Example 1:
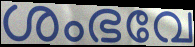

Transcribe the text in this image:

ശംഭവേ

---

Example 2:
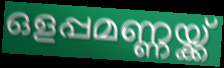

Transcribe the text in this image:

ഒളപ്പമണ്ണയ്ക്ക്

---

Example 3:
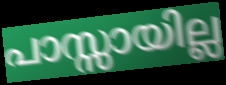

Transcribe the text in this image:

പാസ്സായില്ല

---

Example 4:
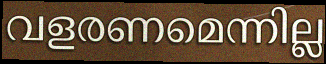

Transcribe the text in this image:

വളരണമെന്നില്ല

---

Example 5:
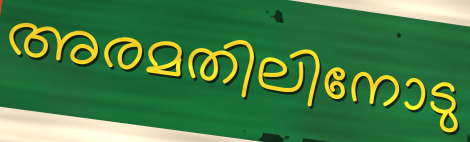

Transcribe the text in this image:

അരമതിലിനോടു